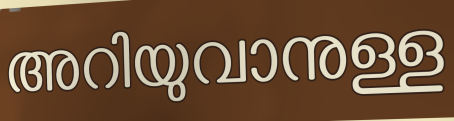
അറിയുവാനുള്ള